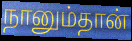
நானும்தான்